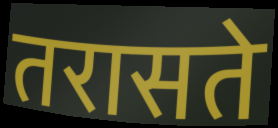
तरासते